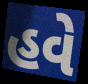
હવે